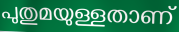
പുതുമയുള്ളതാണ്